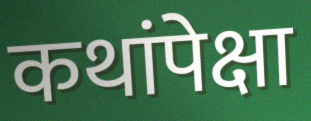
कथांपेक्षा